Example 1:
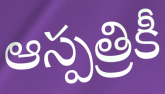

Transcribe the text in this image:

ఆస్పత్రికీ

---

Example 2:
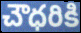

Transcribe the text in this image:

చౌధరికి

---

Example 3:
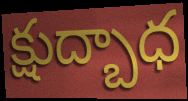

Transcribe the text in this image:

క్షుద్బాధ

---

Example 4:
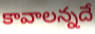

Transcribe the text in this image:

కావాలన్నదే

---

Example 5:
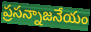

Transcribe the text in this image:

ప్రసన్నాజనేయం